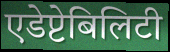
एडेप्टेबिलिटी